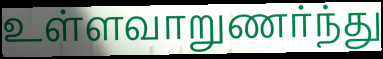
உள்ளவாறுணர்ந்து